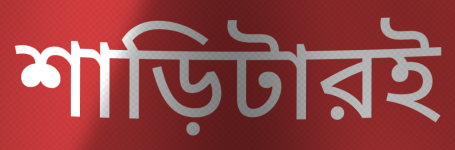
শাড়িটারই